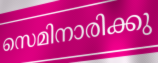
സെമിനാരിക്കു